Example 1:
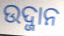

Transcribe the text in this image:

ଉଦ୍ଜାନ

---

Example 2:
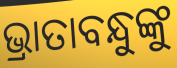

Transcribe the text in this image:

ଭ୍ରାତାବନ୍ଧୁଙ୍କୁ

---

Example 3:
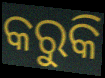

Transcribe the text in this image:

କରୁକି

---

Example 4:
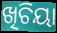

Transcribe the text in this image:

ଖିଚିୟା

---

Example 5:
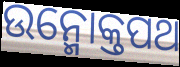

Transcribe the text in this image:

ଉନ୍ମୋକ୍ତପଥ